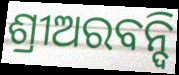
ଶ୍ରୀଅରବନ୍ଦି